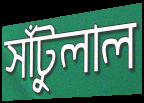
সাঁটুলাল